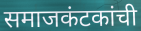
समाजकंटकांची